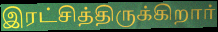
இரட்சித்திருக்கிறார்